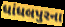
ધાંધલપુરના